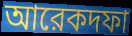
আরেকদফা